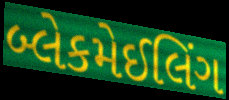
બ્લેકમેઈલિંગ